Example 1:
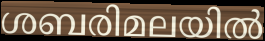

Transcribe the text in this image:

ശബരിമലയിൽ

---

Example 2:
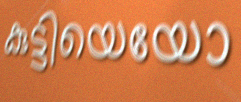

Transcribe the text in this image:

കുട്ടിയെയോ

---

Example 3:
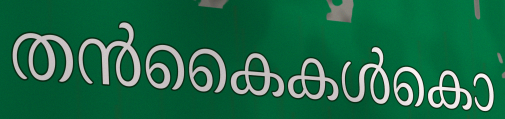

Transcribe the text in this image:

തൻകൈകൾകൊ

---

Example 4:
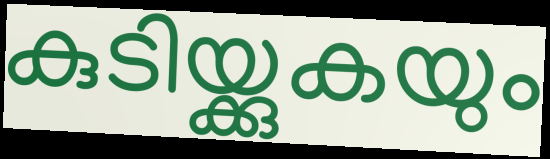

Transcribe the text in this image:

കുടിയ്ക്കുകയും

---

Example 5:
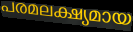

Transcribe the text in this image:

പരമലക്ഷ്യമായ